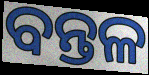
ବନ୍ତଳ